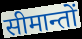
सीमान्तों